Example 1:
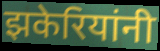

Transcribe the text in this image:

झकेरियांनी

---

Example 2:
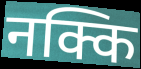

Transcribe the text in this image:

नक्कि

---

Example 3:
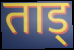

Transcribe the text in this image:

ताड्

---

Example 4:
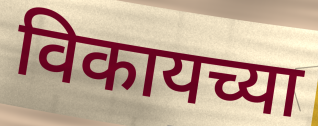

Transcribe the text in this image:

विकायच्या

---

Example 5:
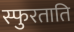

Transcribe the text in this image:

स्फुरताति